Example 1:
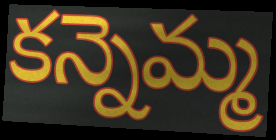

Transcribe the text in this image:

కన్నెమ్మ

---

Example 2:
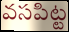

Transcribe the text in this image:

వసపిట్ట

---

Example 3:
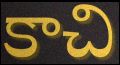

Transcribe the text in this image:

కాచి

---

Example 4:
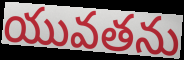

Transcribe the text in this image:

యువతను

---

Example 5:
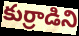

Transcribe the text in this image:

కుర్రాడిని